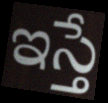
ఇస్తే